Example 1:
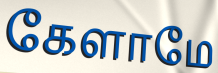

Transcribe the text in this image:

கேளாமே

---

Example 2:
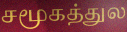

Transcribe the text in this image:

சமூகத்துல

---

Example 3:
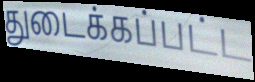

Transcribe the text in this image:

துடைக்கப்பட்ட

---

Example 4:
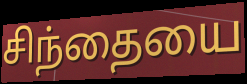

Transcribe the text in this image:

சிந்தையை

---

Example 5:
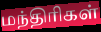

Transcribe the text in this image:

மந்திரிகள்